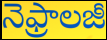
నెఫ్రాలజీ